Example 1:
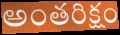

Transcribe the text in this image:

అంతరిక్షం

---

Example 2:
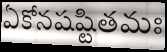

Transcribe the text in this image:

ఏకోనషష్టితమః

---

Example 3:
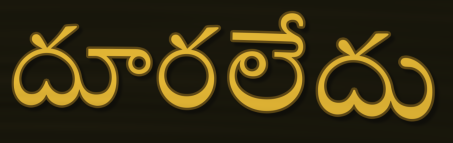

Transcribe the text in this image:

దూరలేదు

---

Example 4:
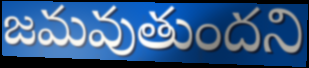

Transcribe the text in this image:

జమవుతుందని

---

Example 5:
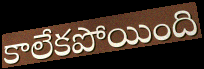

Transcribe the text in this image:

కాలేకపోయింది